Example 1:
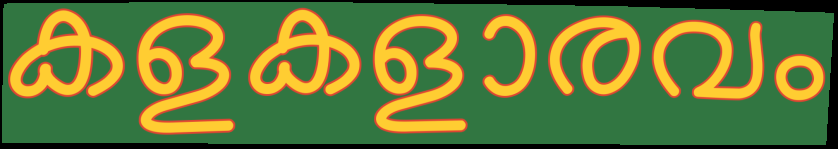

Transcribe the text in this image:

കളകളാരവം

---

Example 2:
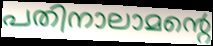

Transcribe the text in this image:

പതിനാലാമന്റെ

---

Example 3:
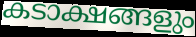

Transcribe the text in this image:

കടാക്ഷങ്ങളും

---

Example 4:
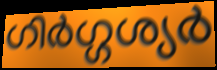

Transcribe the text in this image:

ഗിർഗ്ഗശ്യർ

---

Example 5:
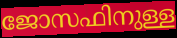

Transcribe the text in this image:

ജോസഫിനുള്ള